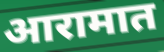
आरामात